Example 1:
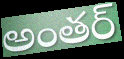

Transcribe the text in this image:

అంతర్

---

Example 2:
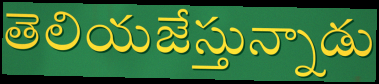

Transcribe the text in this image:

తెలియజేస్తున్నాడు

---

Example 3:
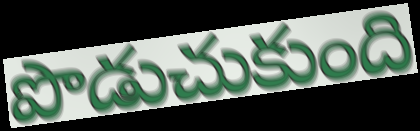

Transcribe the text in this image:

పొడుచుకుంది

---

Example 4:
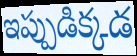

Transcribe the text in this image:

ఇప్పుడిక్కడ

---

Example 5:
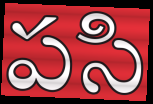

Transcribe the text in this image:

పసి